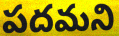
పదమని